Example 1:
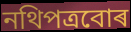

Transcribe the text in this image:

নথিপত্ৰবোৰ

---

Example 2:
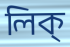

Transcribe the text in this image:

লিক্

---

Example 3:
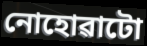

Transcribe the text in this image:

নোহোৱাটো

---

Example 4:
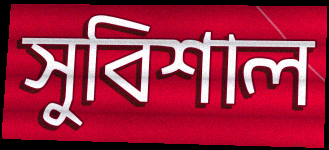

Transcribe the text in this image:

সুবিশাল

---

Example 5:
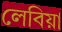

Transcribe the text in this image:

লেবিয়া